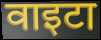
वाइटा